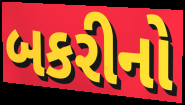
બકરીનો